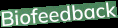
Biofeedback